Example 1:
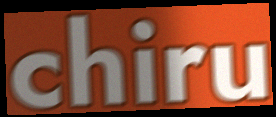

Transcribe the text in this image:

chiru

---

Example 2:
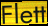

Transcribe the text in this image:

Flett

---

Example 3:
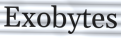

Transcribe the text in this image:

Exobytes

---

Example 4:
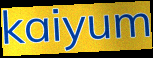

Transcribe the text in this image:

kaiyum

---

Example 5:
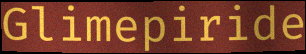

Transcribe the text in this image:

Glimepiride